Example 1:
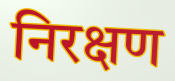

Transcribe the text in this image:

निरक्षण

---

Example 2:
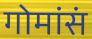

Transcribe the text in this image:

गोमांसं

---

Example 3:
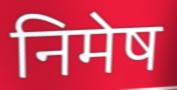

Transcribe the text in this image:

निमेष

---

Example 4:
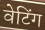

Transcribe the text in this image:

वेटिंग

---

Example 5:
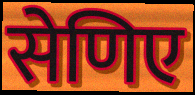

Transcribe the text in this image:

सेणिए